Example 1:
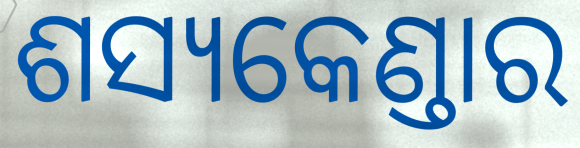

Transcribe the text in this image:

ଶସ୍ୟକେଣ୍ଡାର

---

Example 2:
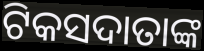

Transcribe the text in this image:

ଟିକସଦାତାଙ୍କ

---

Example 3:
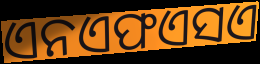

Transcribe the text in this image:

ଏନଏଫଏସଏ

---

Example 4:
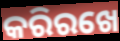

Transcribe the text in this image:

କରିରଖେ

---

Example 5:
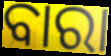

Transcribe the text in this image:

ବାରା